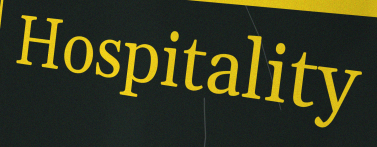
Hospitality